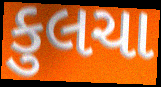
કુલચા